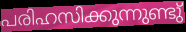
പരിഹസിക്കുന്നുണ്ടു്